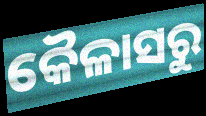
କୈଳାସରୁ